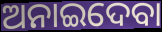
ଅନାଇଦେବା